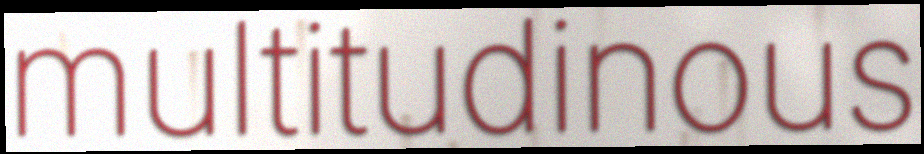
multitudinous